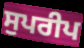
ਸੁਪਰੀਪ